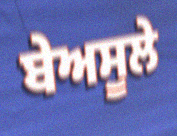
ਬੇਅਸੂਲੇ